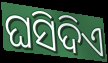
ଘସିଦିଏ